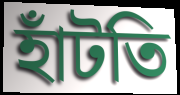
হাঁটতি